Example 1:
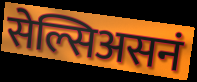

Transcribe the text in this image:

सेल्सिअसनं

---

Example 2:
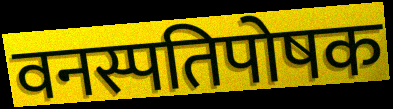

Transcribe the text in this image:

वनस्पतिपोषक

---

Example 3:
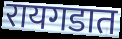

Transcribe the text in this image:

रायगडात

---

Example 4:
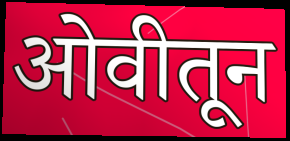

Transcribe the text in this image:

ओवीतून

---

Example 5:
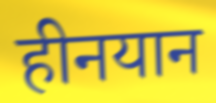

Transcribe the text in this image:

हीनयान